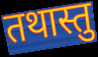
तथास्तु